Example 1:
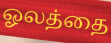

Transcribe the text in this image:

ஓலத்தை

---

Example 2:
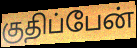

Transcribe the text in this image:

குதிப்பேன்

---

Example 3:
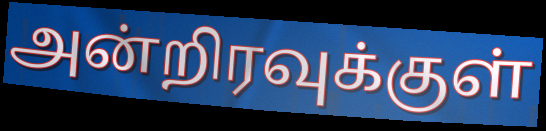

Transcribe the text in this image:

அன்றிரவுக்குள்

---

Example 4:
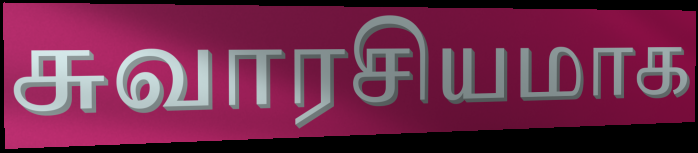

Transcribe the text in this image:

சுவாரசியமாக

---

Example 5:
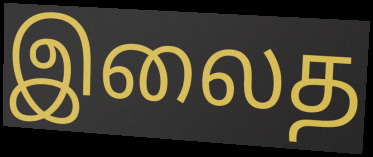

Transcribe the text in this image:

இலைத